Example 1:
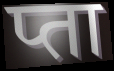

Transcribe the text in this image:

प्ता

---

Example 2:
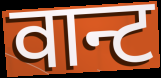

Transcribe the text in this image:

वान्ट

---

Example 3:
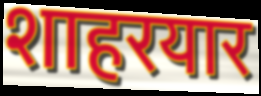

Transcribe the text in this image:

शाहरयार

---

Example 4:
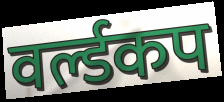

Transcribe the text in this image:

वर्ल्डकप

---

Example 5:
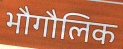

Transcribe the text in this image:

भौगौलिक